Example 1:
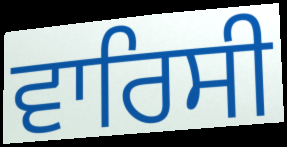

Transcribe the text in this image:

ਵਾਰਿਸੀ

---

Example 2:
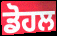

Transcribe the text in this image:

ਡੋਹਲ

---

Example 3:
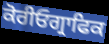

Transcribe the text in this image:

ਕੋਰੀਓਗ੍ਰਾਫਿਕ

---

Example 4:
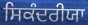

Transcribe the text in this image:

ਸਿਕੰਦਰੀਯਾ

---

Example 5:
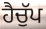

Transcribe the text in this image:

ਹੈਚੁੱਪ